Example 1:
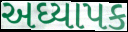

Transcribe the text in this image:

અઘ્યાપક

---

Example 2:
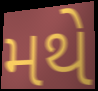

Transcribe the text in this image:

મથે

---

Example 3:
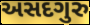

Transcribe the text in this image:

અસદગુરુ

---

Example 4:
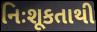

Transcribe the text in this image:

નિઃશૂકતાથી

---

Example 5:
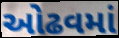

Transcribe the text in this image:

ઓઢવમાં